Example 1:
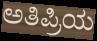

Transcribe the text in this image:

ಅತಿಪ್ರಿಯ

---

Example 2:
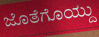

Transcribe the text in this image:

ಜೊತೆಗೊಯ್ದು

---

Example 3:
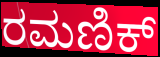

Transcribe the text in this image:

ರಮಣಿಕ್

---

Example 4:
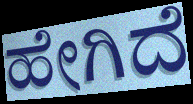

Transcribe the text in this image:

ಹೇಗಿದೆ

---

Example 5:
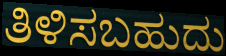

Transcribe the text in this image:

ತಿಳಿಸಬಹುದು